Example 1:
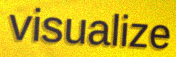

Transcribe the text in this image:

visualize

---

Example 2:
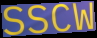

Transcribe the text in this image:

SSCW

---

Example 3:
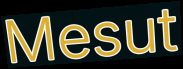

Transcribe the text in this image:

Mesut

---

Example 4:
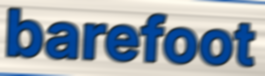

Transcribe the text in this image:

barefoot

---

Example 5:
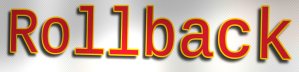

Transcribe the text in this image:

Rollback